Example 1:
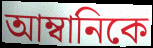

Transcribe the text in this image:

আম্বানিকে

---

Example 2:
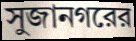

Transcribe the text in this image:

সুজানগরের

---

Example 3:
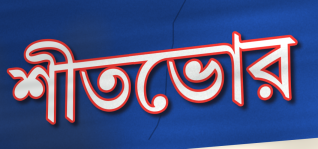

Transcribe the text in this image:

শীতভোর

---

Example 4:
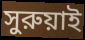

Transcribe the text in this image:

সুরুয়াই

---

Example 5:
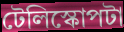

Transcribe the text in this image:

টেলিস্কোপটা